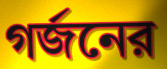
গর্জনের